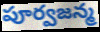
పూర్వజన్మ